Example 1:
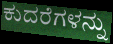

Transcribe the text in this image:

ಕುದರೆಗಳನ್ನು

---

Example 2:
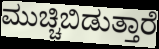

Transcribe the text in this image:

ಮುಚ್ಚಿಬಿಡುತ್ತಾರೆ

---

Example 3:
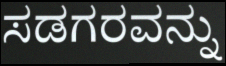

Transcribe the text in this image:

ಸಡಗರವನ್ನು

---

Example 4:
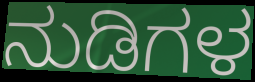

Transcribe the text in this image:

ನುಡಿಗಳ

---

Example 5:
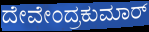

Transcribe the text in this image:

ದೇವೇಂದ್ರಕುಮಾರ್